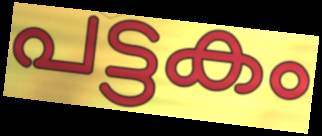
പട്ടകം